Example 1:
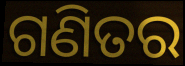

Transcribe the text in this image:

ଗଣିତର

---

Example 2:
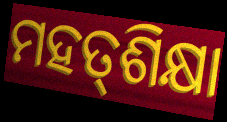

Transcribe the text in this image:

ମହତ୍‌ଶିକ୍ଷା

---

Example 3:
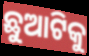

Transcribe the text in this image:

ଛୁଆଟିକୁ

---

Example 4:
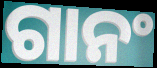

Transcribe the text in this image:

ଗାନଂ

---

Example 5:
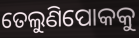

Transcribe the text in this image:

ତେଲୁଣିପୋକକୁ